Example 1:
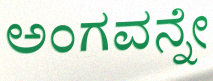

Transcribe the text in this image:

ಅಂಗವನ್ನೇ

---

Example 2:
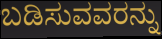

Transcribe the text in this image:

ಬಡಿಸುವವರನ್ನು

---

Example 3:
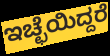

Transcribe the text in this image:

ಇಚ್ಛೆಯಿದ್ದರೆ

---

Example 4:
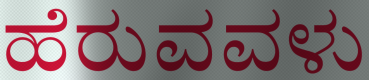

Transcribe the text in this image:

ಹೆರುವವಳು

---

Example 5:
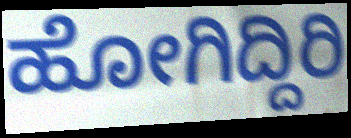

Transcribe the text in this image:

ಹೋಗಿದ್ದಿರಿ